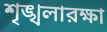
শৃঙ্খলারক্ষা